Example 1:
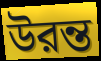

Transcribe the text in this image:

উরন্ত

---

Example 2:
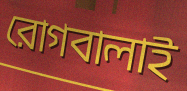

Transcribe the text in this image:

রোগবালাই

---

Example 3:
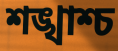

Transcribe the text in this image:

শঙ্খাশ্চ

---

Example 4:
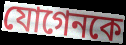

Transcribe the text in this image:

যোগেনকে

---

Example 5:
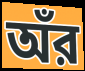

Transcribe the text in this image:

অঁর